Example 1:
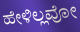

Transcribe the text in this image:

ಹೇಳಿಲ್ಲವೋ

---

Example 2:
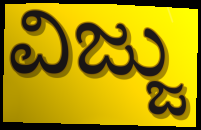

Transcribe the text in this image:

ವಿಜ್ಜು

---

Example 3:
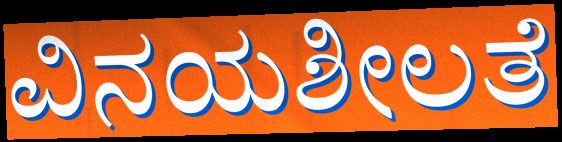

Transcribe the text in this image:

ವಿನಯಶೀಲತೆ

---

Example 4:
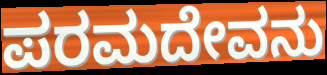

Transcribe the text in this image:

ಪರಮದೇವನು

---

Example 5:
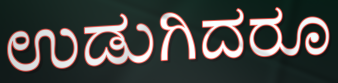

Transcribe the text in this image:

ಉಡುಗಿದರೂ